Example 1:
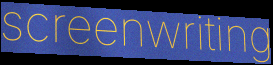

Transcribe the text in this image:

screenwriting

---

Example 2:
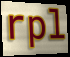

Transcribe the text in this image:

rpl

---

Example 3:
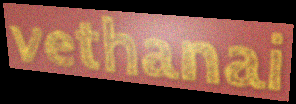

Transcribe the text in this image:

vethanai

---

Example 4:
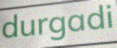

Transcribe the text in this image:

durgadi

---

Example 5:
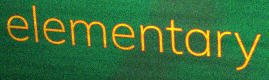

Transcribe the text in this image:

elementary